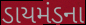
ડાયમંડના